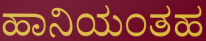
ಹಾನಿಯಂತಹ